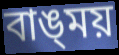
বাঙ্‌ময়